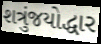
શત્રુંજયોદ્ધાર